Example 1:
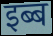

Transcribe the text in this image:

इब्ब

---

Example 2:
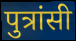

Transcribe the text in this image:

पुत्रांसी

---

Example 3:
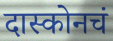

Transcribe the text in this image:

दास्कोनचं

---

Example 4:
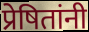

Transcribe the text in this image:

प्रेषितांनी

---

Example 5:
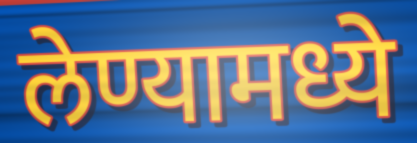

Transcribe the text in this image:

लेण्यामध्ये